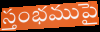
స్తంభముపై